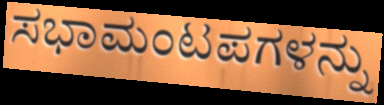
ಸಭಾಮಂಟಪಗಳನ್ನು